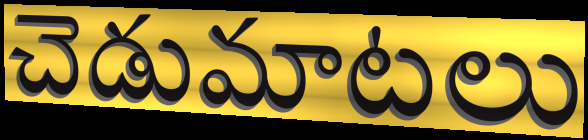
చెడుమాటలు